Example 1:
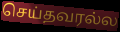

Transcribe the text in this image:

செய்தவரல்ல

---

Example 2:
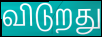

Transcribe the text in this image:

விடுறது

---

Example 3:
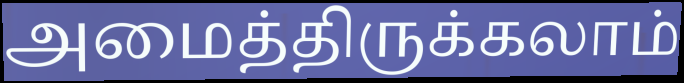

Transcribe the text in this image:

அமைத்திருக்கலாம்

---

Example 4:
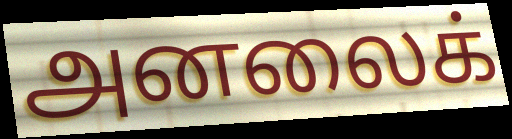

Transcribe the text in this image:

அனலைக்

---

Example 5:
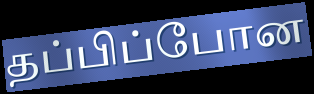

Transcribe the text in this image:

தப்பிப்போன